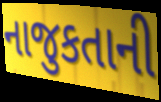
નાજુકતાની